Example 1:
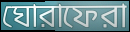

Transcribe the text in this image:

ঘোরাফেরা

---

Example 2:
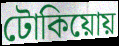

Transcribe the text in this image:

টোকিয়োয়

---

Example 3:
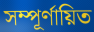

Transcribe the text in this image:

সম্পূর্ণায়িত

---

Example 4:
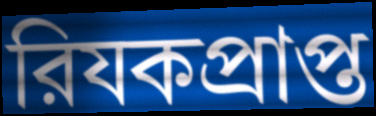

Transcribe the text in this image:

রিযকপ্রাপ্ত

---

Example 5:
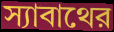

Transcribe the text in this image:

স্যাবাথের